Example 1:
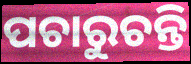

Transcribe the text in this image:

ପଚାରୁଚନ୍ତି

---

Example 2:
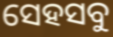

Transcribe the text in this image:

ସେହସବୁ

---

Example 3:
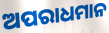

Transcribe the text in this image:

ଅପରାଧମାନ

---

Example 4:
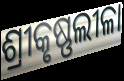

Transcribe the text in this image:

ଶ୍ରୀକୃଷ୍ଣଲୀଳା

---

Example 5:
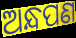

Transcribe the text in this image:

ଅନ୍ଧପଣ